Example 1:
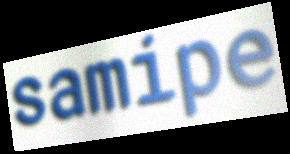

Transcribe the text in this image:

samipe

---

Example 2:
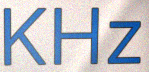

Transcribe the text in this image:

KHz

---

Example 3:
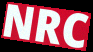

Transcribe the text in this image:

NRC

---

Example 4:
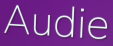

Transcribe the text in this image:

Audie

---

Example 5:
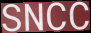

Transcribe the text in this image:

SNCC